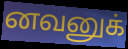
னவனுக்